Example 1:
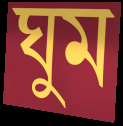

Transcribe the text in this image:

ঘুম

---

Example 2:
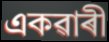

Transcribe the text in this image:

একৱাৰী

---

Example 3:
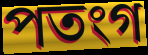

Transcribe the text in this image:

পতংগ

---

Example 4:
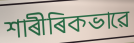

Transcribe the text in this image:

শাৰীৰিকভাৱে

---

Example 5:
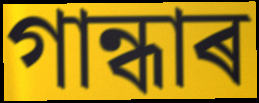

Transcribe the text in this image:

গান্ধাৰ